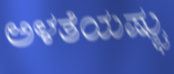
ಅಳತೆಯಷ್ಟು